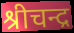
श्रीचन्द्र